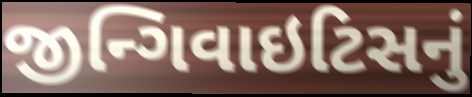
જીન્ગિવાઇટિસનું